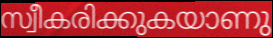
സ്വീകരിക്കുകയാണു